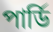
পার্ডি